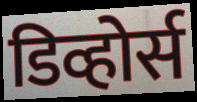
डिव्होर्स